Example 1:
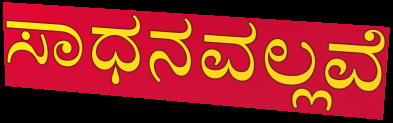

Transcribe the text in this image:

ಸಾಧನವಲ್ಲವೆ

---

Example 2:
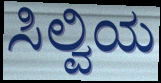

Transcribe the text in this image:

ಸಿಲ್ವಿಯ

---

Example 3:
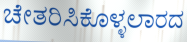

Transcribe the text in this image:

ಚೇತರಿಸಿಕೊಳ್ಳಲಾರದ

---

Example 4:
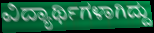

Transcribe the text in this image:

ವಿದ್ಯಾರ್ಥಿಗಳಾಗಿದ್ದು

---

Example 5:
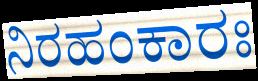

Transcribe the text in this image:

ನಿರಹಂಕಾರಃ